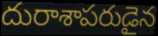
దురాశాపరుడైన